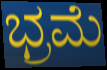
ಭ್ರಮೆ